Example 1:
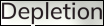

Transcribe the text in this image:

Depletion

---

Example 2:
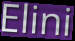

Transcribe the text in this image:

Elini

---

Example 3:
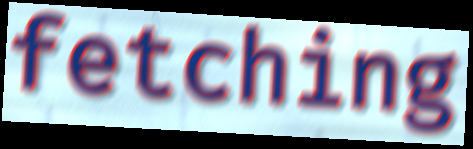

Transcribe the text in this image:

fetching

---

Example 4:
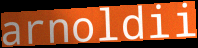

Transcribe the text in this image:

arnoldii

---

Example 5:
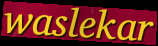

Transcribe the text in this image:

waslekar